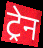
ट्रेन